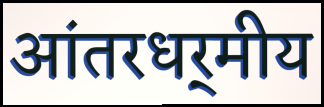
आंतरधर्मीय